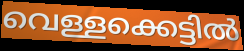
വെള്ളക്കെട്ടിൽ